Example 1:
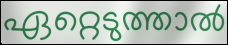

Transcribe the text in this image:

ഏറ്റെടുത്താൽ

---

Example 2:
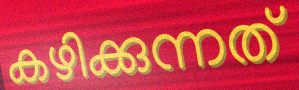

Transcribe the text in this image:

കഴിക്കുന്നത്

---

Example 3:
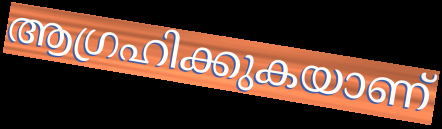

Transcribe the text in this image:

ആഗ്രഹിക്കുകയാണ്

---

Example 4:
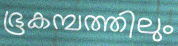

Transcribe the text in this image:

ഭൂകമ്പത്തിലും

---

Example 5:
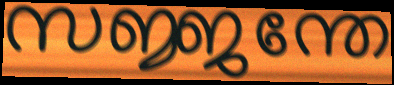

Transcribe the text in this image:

സജ്ജന്തേ